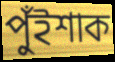
পুঁইশাক